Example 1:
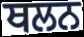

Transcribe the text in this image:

ਥਲਨ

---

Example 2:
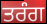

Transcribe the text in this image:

ਤਰੰਗ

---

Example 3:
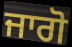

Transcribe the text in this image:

ਜਾਗੋ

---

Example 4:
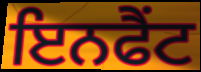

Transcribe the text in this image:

ਇਨਫੈਂਟ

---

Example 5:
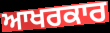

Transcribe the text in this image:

ਆਖਰਕਾਰ